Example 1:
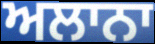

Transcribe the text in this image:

ਅਲਾਨਾ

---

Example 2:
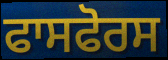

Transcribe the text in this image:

ਫਾਸਫੋਰਸ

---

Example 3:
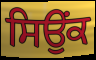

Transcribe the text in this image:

ਸਿਉਂਕ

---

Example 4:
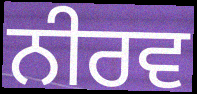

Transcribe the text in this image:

ਨੀਰਵ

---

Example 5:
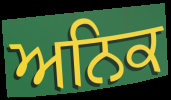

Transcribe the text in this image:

ਅਨਿਕ